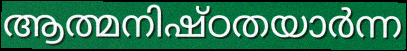
ആത്മനിഷ്ഠതയാർന്ന